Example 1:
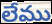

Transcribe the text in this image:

లేము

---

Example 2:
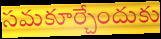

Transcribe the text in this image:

సమకూర్చేందుకు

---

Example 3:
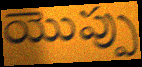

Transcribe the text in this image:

యొప్పు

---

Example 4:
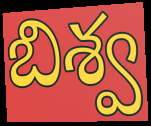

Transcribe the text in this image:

బిశ్వ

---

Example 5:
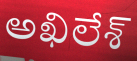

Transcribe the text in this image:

అఖిలేశ్